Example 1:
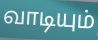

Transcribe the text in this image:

வாடியும்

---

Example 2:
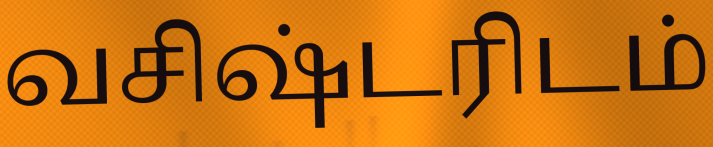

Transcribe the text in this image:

வசிஷ்டரிடம்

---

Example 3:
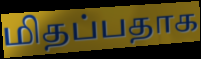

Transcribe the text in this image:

மிதப்பதாக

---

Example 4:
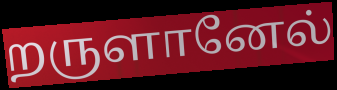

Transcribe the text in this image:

றருளானேல்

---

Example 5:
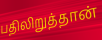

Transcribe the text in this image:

பதிலிறுத்தான்